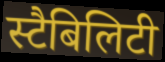
स्टैबिलिटी